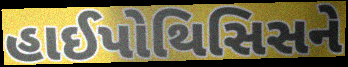
હાઈપોથિસિસને